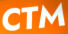
CTM